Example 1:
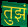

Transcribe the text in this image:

तुझं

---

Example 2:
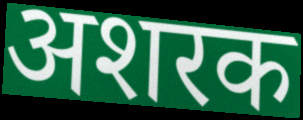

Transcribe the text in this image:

अशरक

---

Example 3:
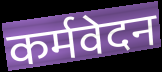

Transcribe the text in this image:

कर्मवेदन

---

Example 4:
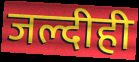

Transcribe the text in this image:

जल्दीही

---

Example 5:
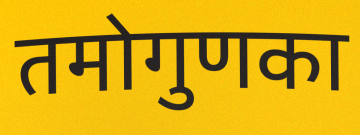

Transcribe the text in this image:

तमोगुणका